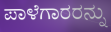
ಪಾಳೆಗಾರರನ್ನು